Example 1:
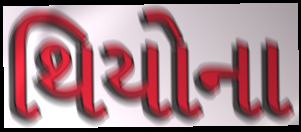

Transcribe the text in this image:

થિયોના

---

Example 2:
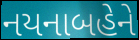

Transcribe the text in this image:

નયનાબહેને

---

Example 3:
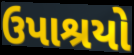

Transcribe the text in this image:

ઉપાશ્રયો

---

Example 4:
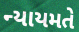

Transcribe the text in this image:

ન્યાયમતે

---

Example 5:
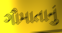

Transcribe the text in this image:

ગૌમાતાનું